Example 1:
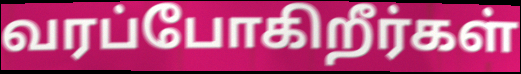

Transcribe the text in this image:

வரப்போகிறீர்கள்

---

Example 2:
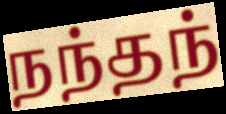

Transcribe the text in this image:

நந்தந்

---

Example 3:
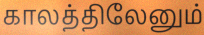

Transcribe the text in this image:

காலத்திலேனும்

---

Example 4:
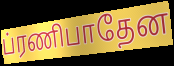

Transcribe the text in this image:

ப்ரணிபாதேன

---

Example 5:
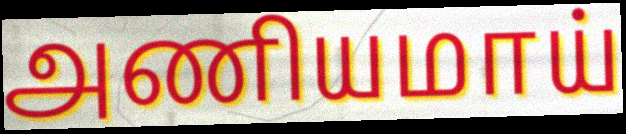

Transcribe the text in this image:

அணியமாய்